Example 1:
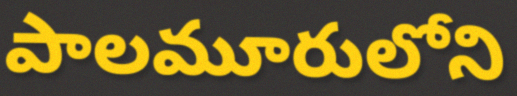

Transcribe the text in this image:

పాలమూరులోని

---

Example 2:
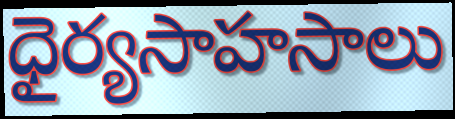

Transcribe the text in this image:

ధైర్యసాహసాలు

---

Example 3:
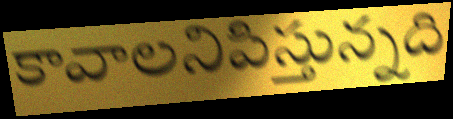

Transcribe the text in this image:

కావాలనిపిస్తున్నది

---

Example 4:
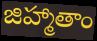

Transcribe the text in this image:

జిహ్మాతాం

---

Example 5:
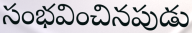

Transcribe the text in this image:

సంభవించినపుడు